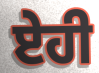
ਏਹੀ